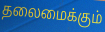
தலைமைக்கும்